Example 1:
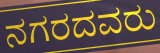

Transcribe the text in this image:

ನಗರದವರು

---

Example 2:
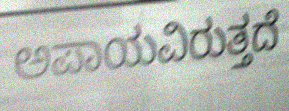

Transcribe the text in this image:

ಅಪಾಯವಿರುತ್ತದೆ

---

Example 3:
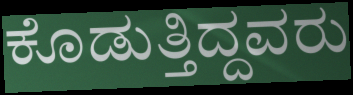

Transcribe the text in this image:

ಕೊಡುತ್ತಿದ್ದವರು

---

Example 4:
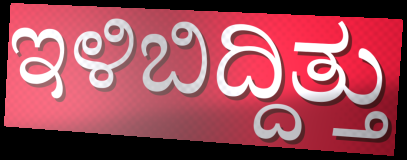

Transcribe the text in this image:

ಇಳಿಬಿದ್ದಿತ್ತು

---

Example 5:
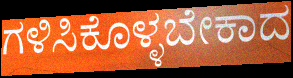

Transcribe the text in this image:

ಗಳಿಸಿಕೊಳ್ಳಬೇಕಾದ